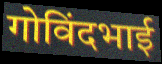
गोविंदभाई